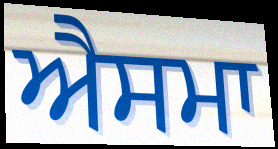
ਐਸਮਾ